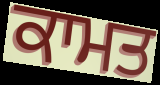
ਕਾਮਤ